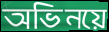
অভিনয়ে